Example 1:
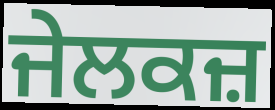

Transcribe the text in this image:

ਜੇਲਕਜ਼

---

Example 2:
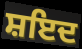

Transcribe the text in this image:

ਸ਼ਇਦ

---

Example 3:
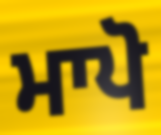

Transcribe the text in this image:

ਮਾਪੋ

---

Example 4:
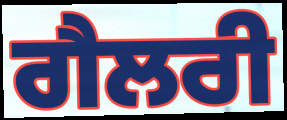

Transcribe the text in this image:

ਗੈਲਰੀ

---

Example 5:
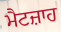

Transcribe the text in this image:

ਮੈਟਜ਼ਾਹ